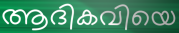
ആദികവിയെ